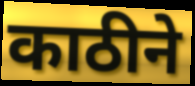
काठीने